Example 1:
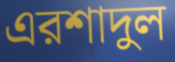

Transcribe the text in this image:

এরশাদুল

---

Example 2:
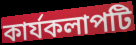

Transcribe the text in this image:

কার্যকলাপটি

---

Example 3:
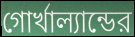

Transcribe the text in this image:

গোর্খাল্যান্ডের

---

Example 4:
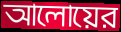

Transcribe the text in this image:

আলোয়ের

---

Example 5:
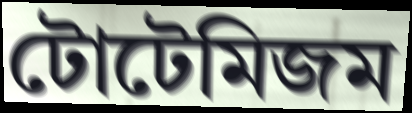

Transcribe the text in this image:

টোটেমিজম